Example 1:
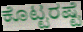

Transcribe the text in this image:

ಕೊಟ್ಟರಷ್ಟೆ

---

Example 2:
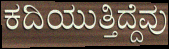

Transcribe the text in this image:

ಕದಿಯುತ್ತಿದ್ದೆವು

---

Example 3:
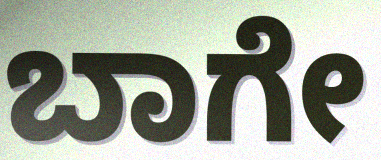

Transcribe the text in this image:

ಬಾಗೇ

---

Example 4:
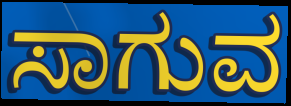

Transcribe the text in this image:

ಸಾಗುವ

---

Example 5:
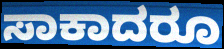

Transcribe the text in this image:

ಸಾಕಾದರೂ